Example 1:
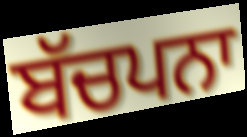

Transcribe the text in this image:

ਬੱਚਪਨਾ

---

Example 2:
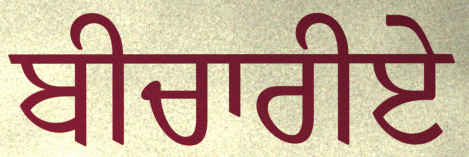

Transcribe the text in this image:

ਬੀਚਾਰੀਏ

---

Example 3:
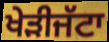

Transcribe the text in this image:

ਖੇੜੀਜੱਟਾ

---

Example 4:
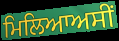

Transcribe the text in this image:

ਮਿਲਿਆਅਸੀਂ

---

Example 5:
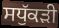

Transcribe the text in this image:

ਸਧੁੱਕੜੀ